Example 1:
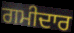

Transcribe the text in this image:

ਗਮੀਦਾਰ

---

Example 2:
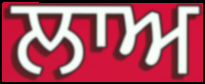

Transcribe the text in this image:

ਲਾਅ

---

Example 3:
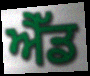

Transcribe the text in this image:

ਐੱਡ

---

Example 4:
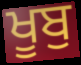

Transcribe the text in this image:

ਖੂਬੁ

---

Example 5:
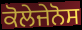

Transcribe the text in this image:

ਕੋਲੇਜੇਨੋਸ